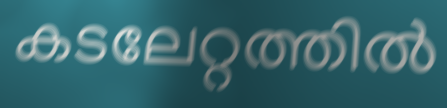
കടലേറ്റത്തിൽ